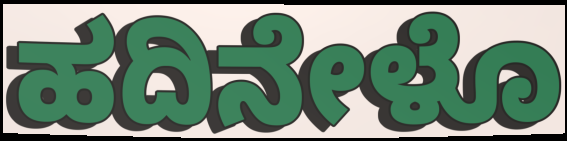
ಹದಿನೇಳೊ